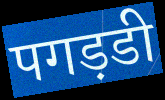
पगड़डी